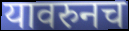
यावरुनच